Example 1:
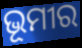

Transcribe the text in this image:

ଭୂମୀର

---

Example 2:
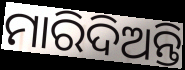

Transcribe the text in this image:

ମାରିଦିଅନ୍ତି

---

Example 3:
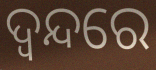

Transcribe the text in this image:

ଦ୍ଵନ୍ଦରେ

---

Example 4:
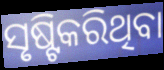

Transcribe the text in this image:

ସୃଷ୍ଟିକରିଥିବା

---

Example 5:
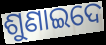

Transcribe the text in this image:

ଶୁଣାଇଦେ